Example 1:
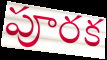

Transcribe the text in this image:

పూరక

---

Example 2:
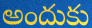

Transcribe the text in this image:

అందుకు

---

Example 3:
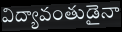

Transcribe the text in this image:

విద్యావంతుడైనా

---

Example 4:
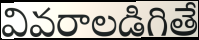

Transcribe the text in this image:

వివరాలడిగితే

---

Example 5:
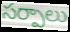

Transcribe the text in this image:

సర్పాలు